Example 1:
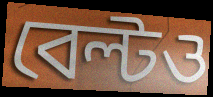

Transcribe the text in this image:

বেল্টও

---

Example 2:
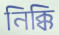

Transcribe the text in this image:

নিক্কি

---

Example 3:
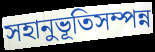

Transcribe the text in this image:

সহানুভূতিসম্পন্ন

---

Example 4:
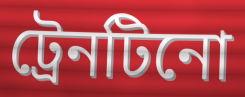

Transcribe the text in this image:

ট্রেনটিনো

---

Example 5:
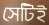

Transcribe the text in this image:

সেটিই